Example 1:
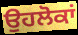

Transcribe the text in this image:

ਉਹਲੋਕਾਂ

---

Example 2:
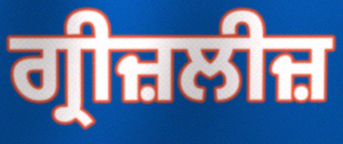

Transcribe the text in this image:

ਗ੍ਰੀਜ਼ਲੀਜ਼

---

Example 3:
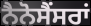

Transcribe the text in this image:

ਨੈਨੋਸੈਂਸਰਾਂ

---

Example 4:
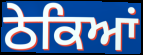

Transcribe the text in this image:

ਠੇਕਿਆਂ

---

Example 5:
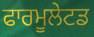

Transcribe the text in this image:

ਫਾਰਮੂਲੇਟਡ